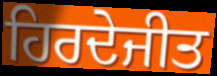
ਹਿਰਦੇਜੀਤ